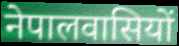
नेपालवासियों